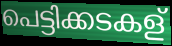
പെട്ടിക്കടകള്